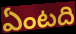
ఏంటది